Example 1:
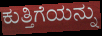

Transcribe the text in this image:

ಕುತ್ತಿಗೆಯನ್ನು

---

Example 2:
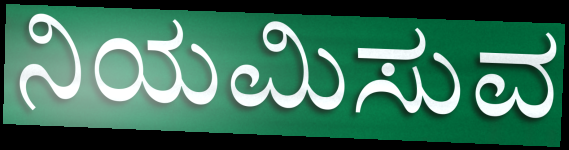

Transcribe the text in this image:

ನಿಯಮಿಸುವ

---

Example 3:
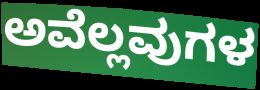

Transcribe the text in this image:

ಅವೆಲ್ಲವುಗಳ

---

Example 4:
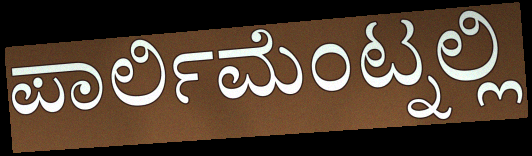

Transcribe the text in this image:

ಪಾರ್ಲಿಮೆಂಟ್ನಲ್ಲಿ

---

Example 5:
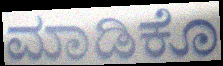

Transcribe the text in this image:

ಮಾಡಿಕೊ